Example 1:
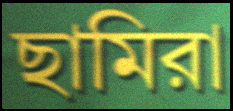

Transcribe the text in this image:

ছামিরা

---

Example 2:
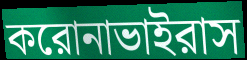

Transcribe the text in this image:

করোনাভাইরাস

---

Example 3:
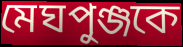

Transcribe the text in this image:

মেঘপুঞ্জকে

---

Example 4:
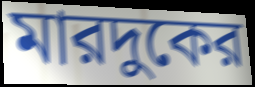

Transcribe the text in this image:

মারদুকের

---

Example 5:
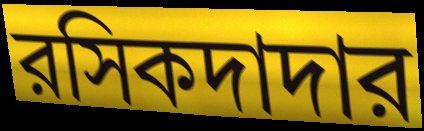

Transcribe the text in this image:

রসিকদাদার